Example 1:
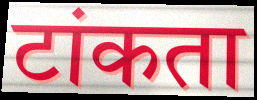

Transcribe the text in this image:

टांकता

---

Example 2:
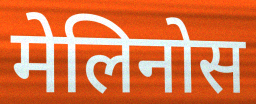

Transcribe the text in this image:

मेलिनोस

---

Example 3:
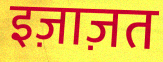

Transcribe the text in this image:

इज़ाज़त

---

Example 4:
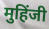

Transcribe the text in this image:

मुहिंजी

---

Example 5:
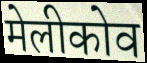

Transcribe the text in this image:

मेलीकोव